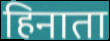
हिनाता